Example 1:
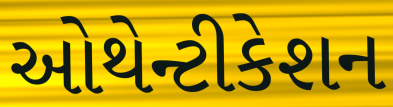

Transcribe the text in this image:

ઓથેન્ટીકેશન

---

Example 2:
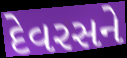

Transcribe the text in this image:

દેવરસને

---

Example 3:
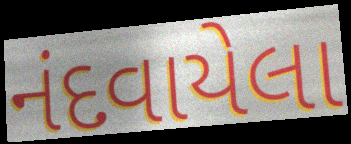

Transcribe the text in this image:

નંદવાયેલા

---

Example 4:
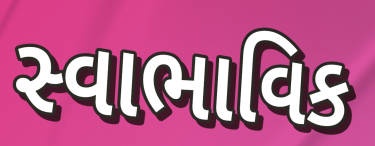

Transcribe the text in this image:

સ્વાભાવિક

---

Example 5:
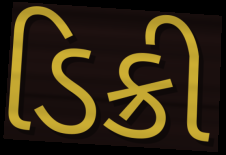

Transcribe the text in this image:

ડિક્રી